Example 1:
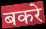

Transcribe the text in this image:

बकरे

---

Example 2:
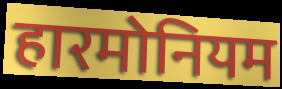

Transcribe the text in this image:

हारमोनियम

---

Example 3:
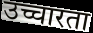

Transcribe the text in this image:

उच्चारता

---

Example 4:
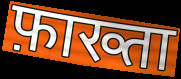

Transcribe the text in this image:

फ़ाख्ता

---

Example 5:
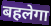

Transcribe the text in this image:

बहलेगा